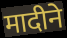
मादीने